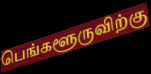
பெங்களூருவிற்கு